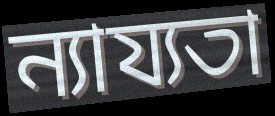
ন্যায্যতা